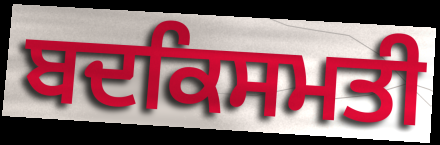
ਬਦਕਿਸਮਤੀ